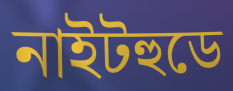
নাইটহুডে